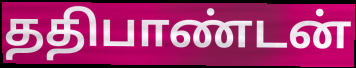
ததிபாண்டன்